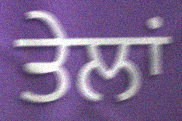
ਤੇਲਾਂ